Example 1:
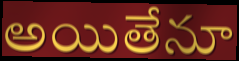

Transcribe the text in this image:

అయితేనూ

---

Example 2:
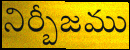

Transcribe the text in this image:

నిర్బీజము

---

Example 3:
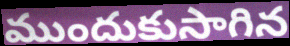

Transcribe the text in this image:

ముందుకుసాగిన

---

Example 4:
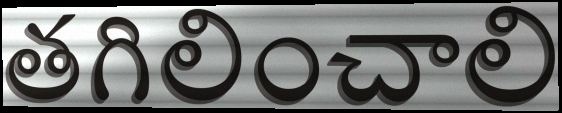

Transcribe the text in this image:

తగిలించాలి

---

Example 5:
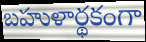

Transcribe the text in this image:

బహుళార్థకంగా